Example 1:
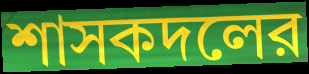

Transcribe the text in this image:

শাসকদলের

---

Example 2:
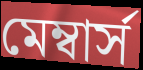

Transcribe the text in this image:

মেম্বার্স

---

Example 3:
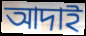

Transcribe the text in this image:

আদাই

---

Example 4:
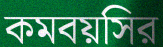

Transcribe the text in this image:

কমবয়সির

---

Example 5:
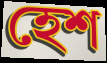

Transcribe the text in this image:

হেশ